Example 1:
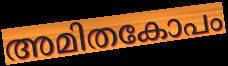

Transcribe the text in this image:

അമിതകോപം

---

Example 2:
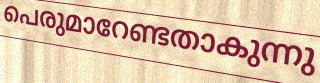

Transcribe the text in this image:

പെരുമാറേണ്ടതാകുന്നു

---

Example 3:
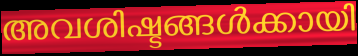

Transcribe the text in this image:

അവശിഷ്ടങ്ങൾക്കായി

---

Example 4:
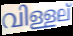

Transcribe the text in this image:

വിള്ളല്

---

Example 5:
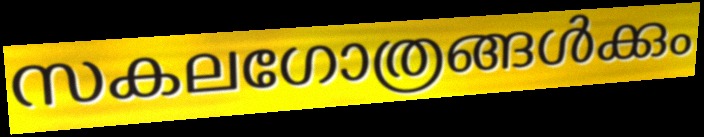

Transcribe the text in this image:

സകലഗോത്രങ്ങൾക്കും